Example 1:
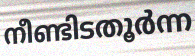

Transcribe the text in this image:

നീണ്ടിടതൂർന്ന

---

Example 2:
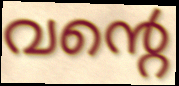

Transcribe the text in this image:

വന്റെ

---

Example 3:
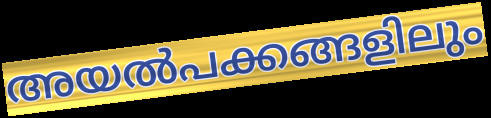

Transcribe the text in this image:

അയൽപക്കങ്ങളിലും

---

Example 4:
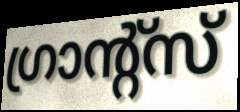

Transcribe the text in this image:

ഗ്രാന്റ്സ്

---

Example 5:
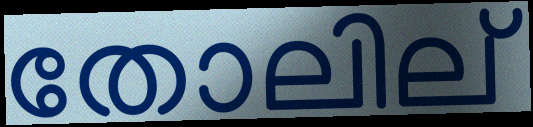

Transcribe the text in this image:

തോലില്